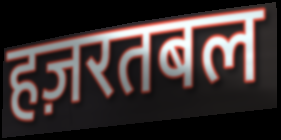
हज़रतबल